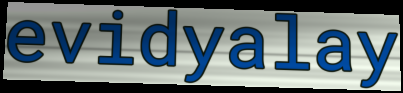
evidyalay